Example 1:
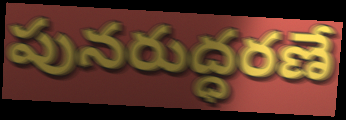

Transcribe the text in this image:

పునరుద్ధరణే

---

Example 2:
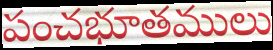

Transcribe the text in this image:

పంచభూతములు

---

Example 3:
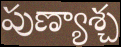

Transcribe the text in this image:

పుణ్యాశ్చ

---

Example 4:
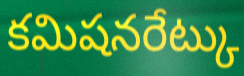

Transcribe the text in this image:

కమిషనరేట్కు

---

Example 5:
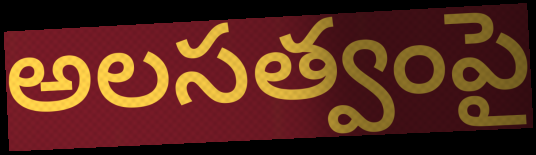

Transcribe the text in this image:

అలసత్వంపై